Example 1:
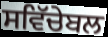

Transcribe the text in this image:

ਸਵਿੱਚੇਬਲ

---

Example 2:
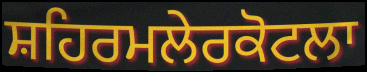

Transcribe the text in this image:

ਸ਼ਹਿਰਮਲੇਰਕੋਟਲਾ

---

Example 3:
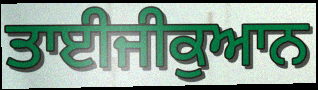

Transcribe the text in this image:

ਤਾਈਜੀਕੁਆਨ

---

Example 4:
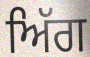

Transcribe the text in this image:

ਅਿੱਗ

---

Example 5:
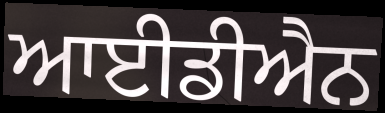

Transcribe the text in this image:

ਆਈਡੀਐਨ